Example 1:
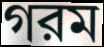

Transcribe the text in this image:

গরম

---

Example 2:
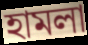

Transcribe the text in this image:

হামলা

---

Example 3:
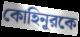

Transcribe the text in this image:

কোহিনূরকে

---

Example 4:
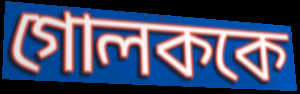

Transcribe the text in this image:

গোলককে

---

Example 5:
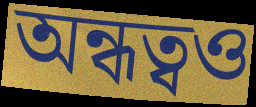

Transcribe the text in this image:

অন্ধত্বও